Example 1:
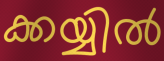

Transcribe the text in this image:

ക്കയ്യിൽ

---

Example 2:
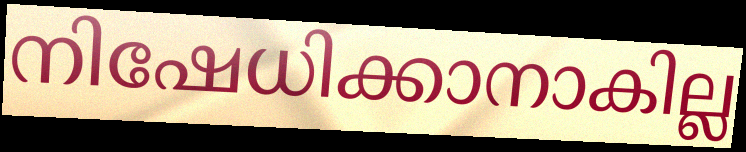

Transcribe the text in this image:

നിഷേധിക്കാനാകില്ല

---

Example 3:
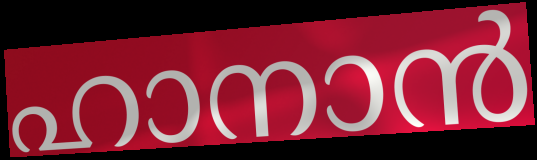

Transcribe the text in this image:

ഹാനാൻ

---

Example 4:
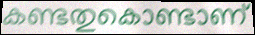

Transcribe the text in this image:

കണ്ടതുകൊണ്ടാണ്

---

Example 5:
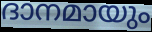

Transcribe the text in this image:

ദാനമായും